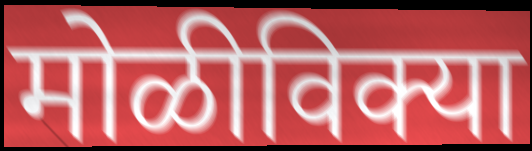
मोळीविक्या